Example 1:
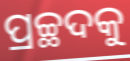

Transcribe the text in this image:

ପ୍ରଚ୍ଛଦକୁ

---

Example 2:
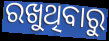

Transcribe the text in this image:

ରଖୁଥିବାରୁ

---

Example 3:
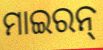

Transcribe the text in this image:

ମାଇରନ୍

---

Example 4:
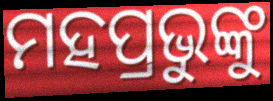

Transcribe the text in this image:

ମହପ୍ରଭୁଙ୍କୁ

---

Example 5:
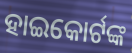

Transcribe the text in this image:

ହାଇକୋର୍ଟଙ୍କ